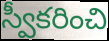
స్వీకరించి